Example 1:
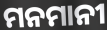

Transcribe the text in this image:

ମନମାନୀ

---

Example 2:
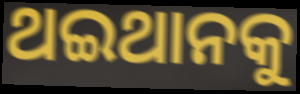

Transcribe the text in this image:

ଥଇଥାନକୁ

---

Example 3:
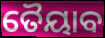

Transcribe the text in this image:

ତୈୟାବ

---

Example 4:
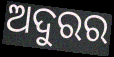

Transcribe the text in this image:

ଅଦୁରର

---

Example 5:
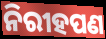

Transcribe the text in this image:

ନିରୀହପଣ